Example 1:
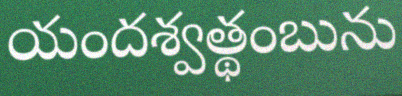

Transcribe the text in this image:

యందశ్వత్థంబును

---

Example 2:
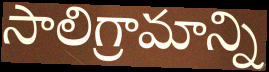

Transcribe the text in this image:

సాలిగ్రామాన్ని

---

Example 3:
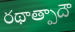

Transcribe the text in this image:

రథాత్పాదౌ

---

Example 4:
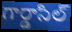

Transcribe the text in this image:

గార్డాసిల్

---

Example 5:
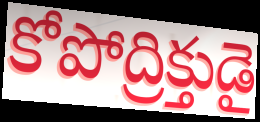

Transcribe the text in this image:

కోపోద్రిక్తుడై